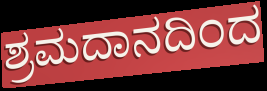
ಶ್ರಮದಾನದಿಂದ